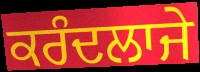
ਕਰੰਦਲਾਜੇ